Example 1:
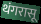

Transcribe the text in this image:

थंगरासू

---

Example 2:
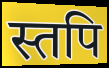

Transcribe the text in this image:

स्‍तपि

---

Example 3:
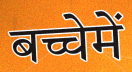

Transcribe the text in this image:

बच्चेमें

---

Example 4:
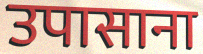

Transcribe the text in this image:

उपासाना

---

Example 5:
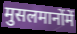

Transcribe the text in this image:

मुसलमानोंमें